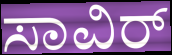
ಸಾವಿರ್